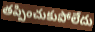
తప్పించుకుపోలేదు